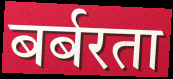
बर्बरता